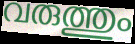
വരുത്തും